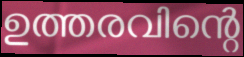
ഉത്തരവിന്റെ